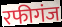
रफीगंज